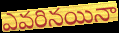
ఎవరినయినా